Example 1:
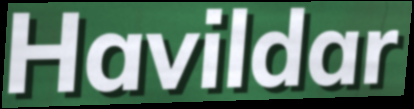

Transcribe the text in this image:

Havildar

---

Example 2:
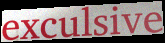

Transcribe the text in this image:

exculsive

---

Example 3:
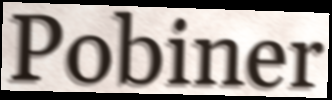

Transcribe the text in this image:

Pobiner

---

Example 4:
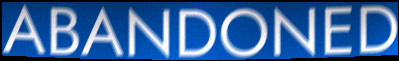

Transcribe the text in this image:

ABANDONED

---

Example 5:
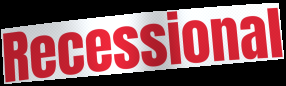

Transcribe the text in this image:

Recessional